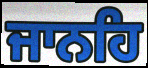
ਜਾਨਹਿ